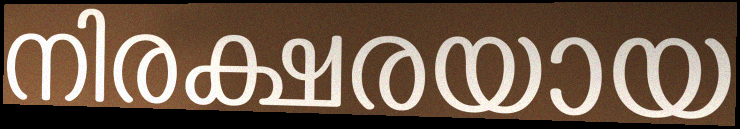
നിരക്ഷരയായ